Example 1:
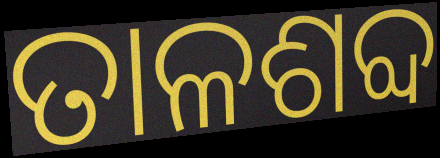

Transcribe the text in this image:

ତାଳଶବ୍ଦ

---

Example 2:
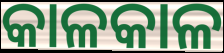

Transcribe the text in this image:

କାଳକାଳ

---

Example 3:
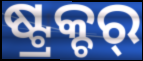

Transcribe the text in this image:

ଷ୍ଟ୍ରକ୍ଚର୍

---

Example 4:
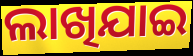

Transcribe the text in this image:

ଲାଖିଯାଇ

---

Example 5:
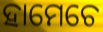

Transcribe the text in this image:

ହାମେଚେ